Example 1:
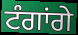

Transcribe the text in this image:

ਟੰਗਾਂਗੇ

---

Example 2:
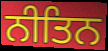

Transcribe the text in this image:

ਨੀਤਿਨ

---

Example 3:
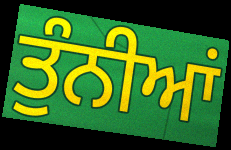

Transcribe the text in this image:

ਤੁੰਨੀਆਂ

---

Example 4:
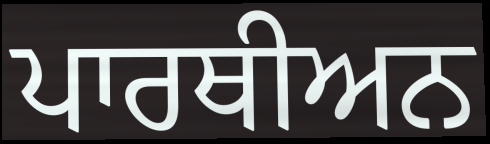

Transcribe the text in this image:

ਪਾਰਥੀਅਨ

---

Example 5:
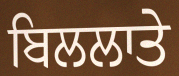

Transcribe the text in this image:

ਬਿਲਲਾਤੇ